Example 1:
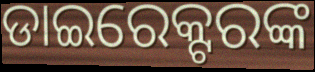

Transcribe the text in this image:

ଡାଇରେକ୍ଟରଙ୍କ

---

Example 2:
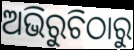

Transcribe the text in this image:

ଅଭିରୁଚିଠାରୁ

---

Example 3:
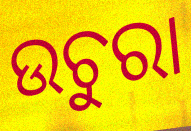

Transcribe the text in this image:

ଉଚୁରା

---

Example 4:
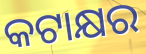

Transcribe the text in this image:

କଟାକ୍ଷର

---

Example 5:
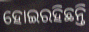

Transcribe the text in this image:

ହୋଇରହିଛନ୍ତି